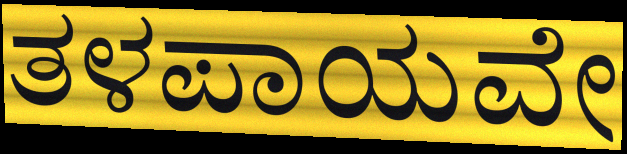
ತಳಪಾಯವೇ